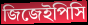
জিজেইপিসি